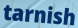
tarnish